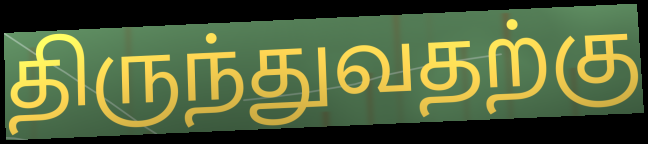
திருந்துவதற்கு